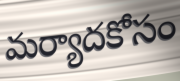
మర్యాదకోసం